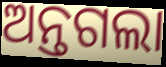
ଅନ୍ତଗଲା